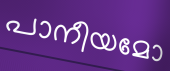
പാനീയമോ